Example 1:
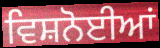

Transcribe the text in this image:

ਵਿਸ਼ਨੋਈਆਂ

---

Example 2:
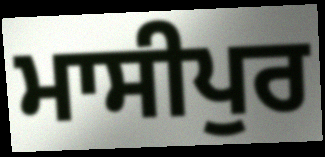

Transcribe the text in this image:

ਮਾਸੀਪੁਰ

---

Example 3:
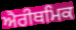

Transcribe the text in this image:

ਐਰੀਥਮਿਕ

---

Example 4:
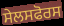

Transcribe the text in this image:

ਸੇਲਸਫੋਰਸ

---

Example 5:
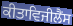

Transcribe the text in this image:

ਕੀਤਾਵਿਜੀਲੈਂਸ